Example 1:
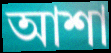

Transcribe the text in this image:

আশা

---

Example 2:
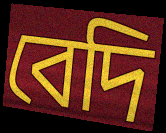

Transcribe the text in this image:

বেদি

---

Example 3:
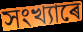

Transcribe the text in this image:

সংখ্যাৰে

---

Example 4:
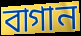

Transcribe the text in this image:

বাগান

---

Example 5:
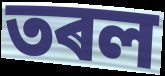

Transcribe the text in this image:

তৰল